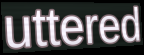
uttered